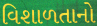
વિશાળતાનો